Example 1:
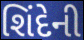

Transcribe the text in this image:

શિંદેની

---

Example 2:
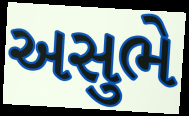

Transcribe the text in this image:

અસુભે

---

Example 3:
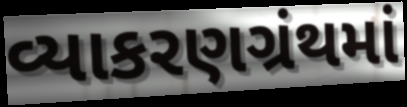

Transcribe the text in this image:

વ્યાકરણગ્રંથમાં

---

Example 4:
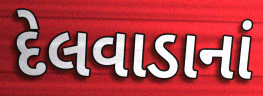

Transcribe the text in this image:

દેલવાડાનાં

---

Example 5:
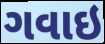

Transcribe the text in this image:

ગવાઇ